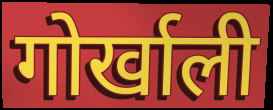
गोर्खाली